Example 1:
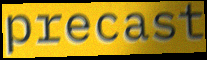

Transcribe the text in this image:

precast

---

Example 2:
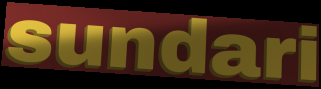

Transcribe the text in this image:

sundari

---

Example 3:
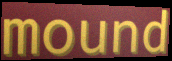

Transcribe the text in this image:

mound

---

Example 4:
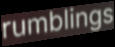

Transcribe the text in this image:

rumblings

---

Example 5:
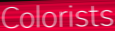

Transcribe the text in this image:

Colorists